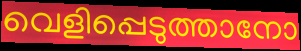
വെളിപ്പെടുത്താനോ